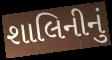
શાલિનીનું